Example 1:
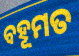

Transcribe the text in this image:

ବହୂମତ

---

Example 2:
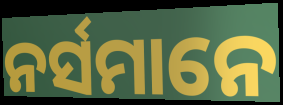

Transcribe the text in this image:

ନର୍ସମାନେ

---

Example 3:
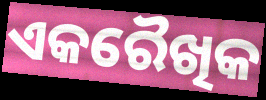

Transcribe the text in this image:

ଏକରୈଖିକ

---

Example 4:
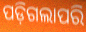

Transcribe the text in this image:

ପଡ଼ିଗଲାପରି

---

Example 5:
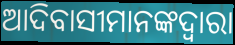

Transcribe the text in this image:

ଆଦିବାସୀମାନଙ୍କଦ୍ୱାରା